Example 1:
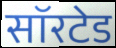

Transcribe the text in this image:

सॉरटेड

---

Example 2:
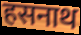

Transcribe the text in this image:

हसनाथ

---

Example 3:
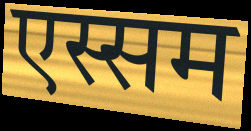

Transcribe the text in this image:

एस्सम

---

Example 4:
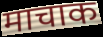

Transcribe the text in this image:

माचाक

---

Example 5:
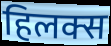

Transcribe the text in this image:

हिलक्स